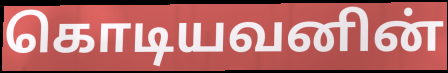
கொடியவனின்